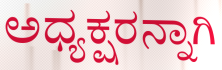
ಅಧ್ಯಕ್ಷರನ್ನಾಗಿ